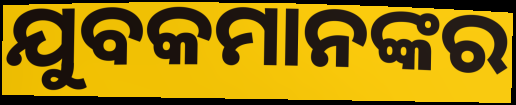
ଯୁବକମାନଙ୍କର